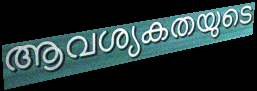
ആവശ്യകതയുടെ